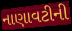
નાણાવટીની